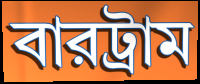
বারট্রাম